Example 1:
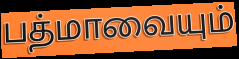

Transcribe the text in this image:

பத்மாவையும்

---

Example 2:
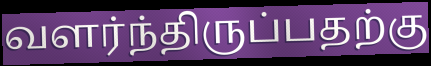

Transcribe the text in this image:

வளர்ந்திருப்பதற்கு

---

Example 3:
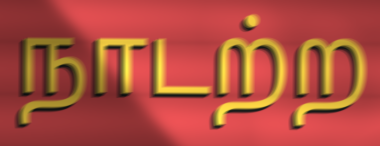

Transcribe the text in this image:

நாடற்ற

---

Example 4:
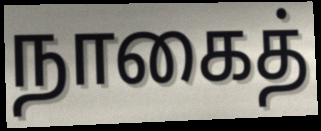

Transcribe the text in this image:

நாகைத்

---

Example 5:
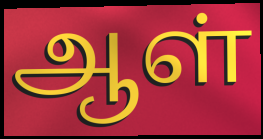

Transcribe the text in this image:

ஆள்